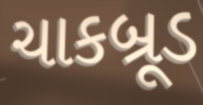
ચાકબ્રૂડ